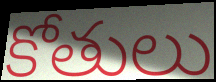
కోతులు